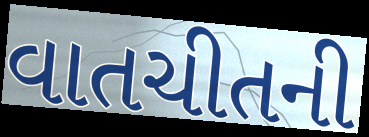
વાતચીતની